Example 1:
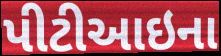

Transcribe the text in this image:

પીટીઆઇના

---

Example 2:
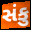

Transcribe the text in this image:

સંકુ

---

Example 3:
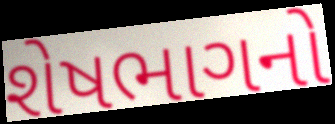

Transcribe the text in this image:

શેષભાગનો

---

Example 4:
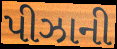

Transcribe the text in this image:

પીઝાની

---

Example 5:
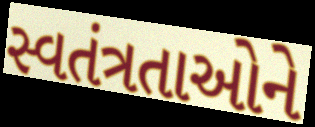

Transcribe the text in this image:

સ્વતંત્રતાઓને